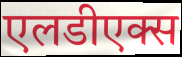
एलडीएक्स